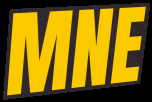
MNE